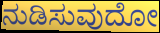
ನುಡಿಸುವುದೋ